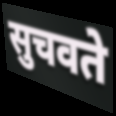
सुचवते